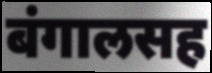
बंगालसह